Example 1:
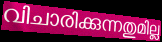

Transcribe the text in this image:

വിചാരിക്കുന്നതുമില്ല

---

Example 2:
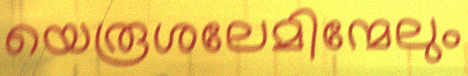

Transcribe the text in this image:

യെരൂശലേമിന്മേലും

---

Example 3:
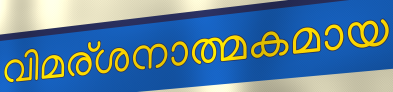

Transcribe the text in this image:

വിമര്ശനാത്മകമായ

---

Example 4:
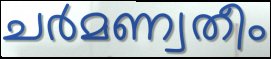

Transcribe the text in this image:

ചർമണ്വതീം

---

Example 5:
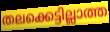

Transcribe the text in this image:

തലക്കെട്ടില്ലാത്ത